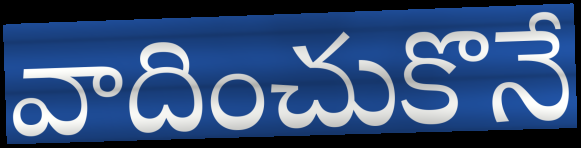
వాదించుకొనే